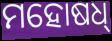
ମହୋଷଧ୍